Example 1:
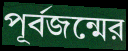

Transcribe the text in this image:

পূর্বজন্মের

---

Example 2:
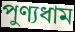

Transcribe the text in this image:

পুণ্যধাম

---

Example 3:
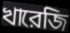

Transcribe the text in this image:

খারেজি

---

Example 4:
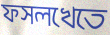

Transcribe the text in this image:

ফসলখেতে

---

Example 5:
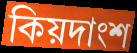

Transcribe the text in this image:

কিয়দাংশ